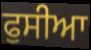
ਫੁਸੀਆ